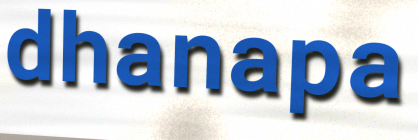
dhanapa